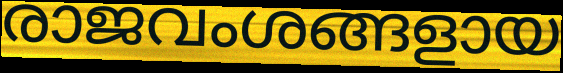
രാജവംശങ്ങളായ